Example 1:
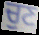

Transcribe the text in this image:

ਚੁਣ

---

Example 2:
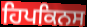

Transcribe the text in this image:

ਹਿਪਕਿਨਸ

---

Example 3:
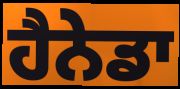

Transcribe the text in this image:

ਹੈਨੇਡਾ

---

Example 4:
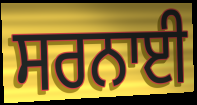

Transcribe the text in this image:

ਸਰਨਾਈ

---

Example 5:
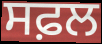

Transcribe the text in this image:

ਸਫ਼ਲ